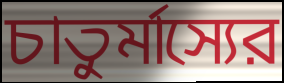
চাতুর্মাস্যের